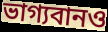
ভাগ্যবানও